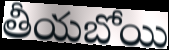
తీయబోయి